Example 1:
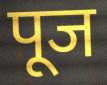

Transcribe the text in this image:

पूज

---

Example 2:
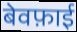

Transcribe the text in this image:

बेवफ़ाई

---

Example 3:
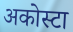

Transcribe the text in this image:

अकोस्टा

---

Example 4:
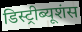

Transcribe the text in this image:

डिस्ट्रीब्यूशंस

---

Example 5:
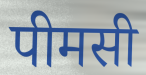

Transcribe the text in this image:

पीमसी